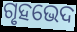
ଗୃହଭେଦ